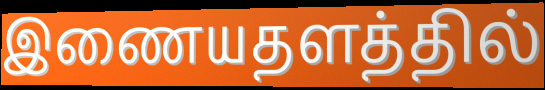
இணையதளத்தில்